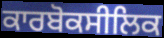
ਕਾਰਬੋਕਸੀਲਿਕ